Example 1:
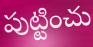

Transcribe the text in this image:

పుట్టించు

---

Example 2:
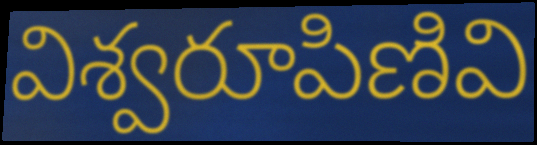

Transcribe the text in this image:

విశ్వరూపిణివి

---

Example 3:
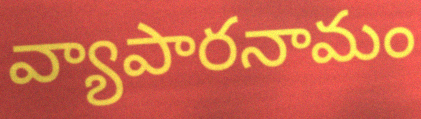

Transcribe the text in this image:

వ్యాపారనామం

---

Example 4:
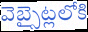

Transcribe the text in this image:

వెబ్సైట్లలోకి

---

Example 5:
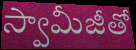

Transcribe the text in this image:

స్వామీజీతో